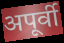
अपूर्वी